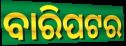
ବାରିପଟର